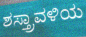
ಶಸ್ತ್ರಾವಳಿಯ